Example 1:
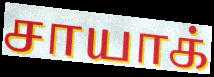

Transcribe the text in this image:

சாயாக்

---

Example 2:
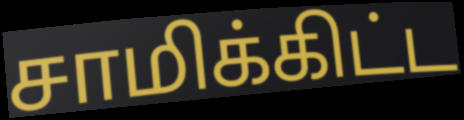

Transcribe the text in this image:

சாமிக்கிட்ட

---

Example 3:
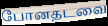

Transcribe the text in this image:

போனதடவை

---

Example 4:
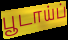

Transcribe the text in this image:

பூடாய்ப்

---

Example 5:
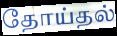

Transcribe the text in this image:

தோய்தல்